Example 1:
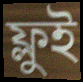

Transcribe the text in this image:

ফ্লুই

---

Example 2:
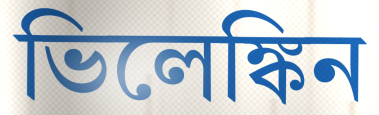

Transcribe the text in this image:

ভিলেঙ্কিন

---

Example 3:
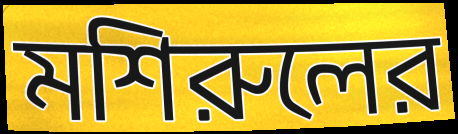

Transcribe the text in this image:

মশিরুলের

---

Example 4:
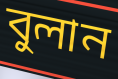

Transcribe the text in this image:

বুলান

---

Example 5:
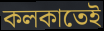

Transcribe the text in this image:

কলকাতেই